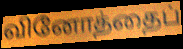
வினோத்தைப்